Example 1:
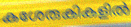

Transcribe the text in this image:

കശേരുകികളിൽ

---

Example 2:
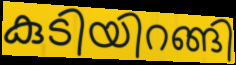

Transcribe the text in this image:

കുടിയിറങ്ങി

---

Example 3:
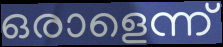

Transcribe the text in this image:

ഒരാളെന്ന്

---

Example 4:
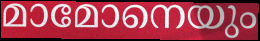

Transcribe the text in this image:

മാമോനെയും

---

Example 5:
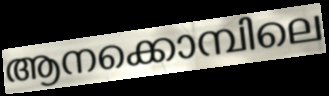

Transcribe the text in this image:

ആനക്കൊമ്പിലെ